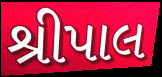
શ્રીપાલ